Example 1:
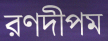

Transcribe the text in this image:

রণদীপম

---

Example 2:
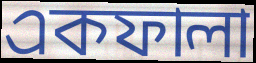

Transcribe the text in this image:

একফালা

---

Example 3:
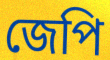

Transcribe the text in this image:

জেপি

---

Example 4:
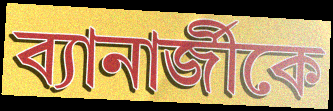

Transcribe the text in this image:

ব্যানার্জীকে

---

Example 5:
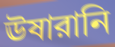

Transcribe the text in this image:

ঊষারানি